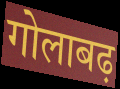
गोलाबढ़